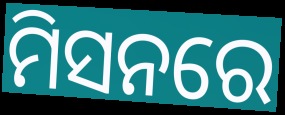
ମିସନରେ